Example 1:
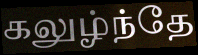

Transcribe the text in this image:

கலுழ்ந்தே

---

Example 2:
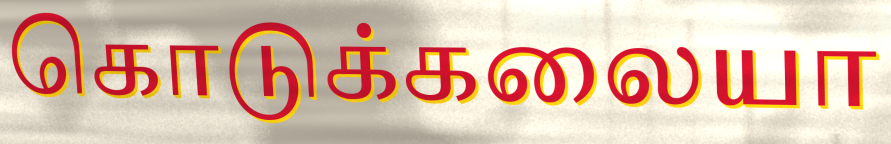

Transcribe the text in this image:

கொடுக்கலையா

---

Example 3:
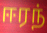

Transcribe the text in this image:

ஈரந்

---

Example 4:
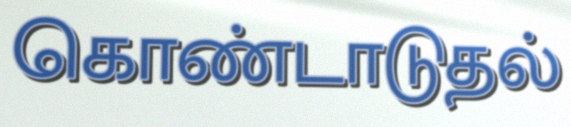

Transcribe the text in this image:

கொண்டாடுதல்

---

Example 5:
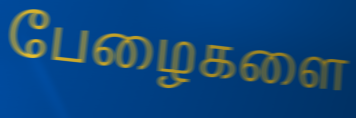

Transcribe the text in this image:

பேழைகளை